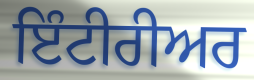
ਇੰਟੀਰੀਅਰ